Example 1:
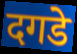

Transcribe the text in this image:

दगडे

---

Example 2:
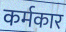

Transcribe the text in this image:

कर्मकार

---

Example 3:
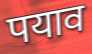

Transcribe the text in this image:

पयाव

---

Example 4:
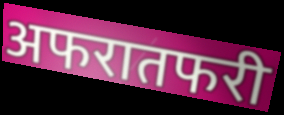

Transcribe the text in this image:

अफरातफरी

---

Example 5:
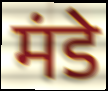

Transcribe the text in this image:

मंडे